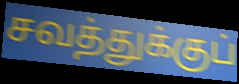
சவத்துக்குப்